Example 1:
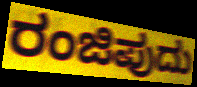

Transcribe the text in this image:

ರಂಜಿಪುದು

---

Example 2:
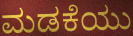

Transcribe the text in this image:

ಮಡಕೆಯು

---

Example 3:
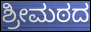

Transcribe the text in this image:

ಶ್ರೀಮಠದ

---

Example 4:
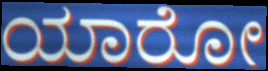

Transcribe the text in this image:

ಯಾರೋ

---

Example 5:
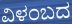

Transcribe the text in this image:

ವಿಳಂಬದ